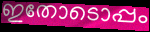
ഇതോടൊപ്പം